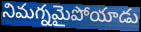
నిమగ్నమైపోయాడు